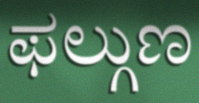
ಫಲ್ಗುಣ